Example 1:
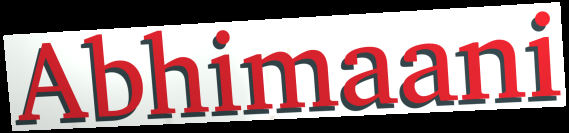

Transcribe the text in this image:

Abhimaani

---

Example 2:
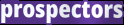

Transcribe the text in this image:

prospectors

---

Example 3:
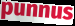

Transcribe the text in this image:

punnus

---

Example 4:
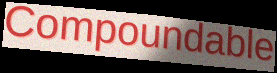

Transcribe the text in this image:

Compoundable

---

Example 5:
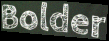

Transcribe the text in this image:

Bolder